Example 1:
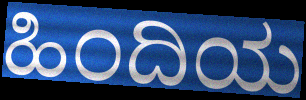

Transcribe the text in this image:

ಹಿಂದಿಯ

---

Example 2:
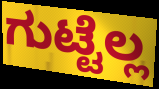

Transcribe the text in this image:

ಗುಟ್ಟೆಲ್ಲ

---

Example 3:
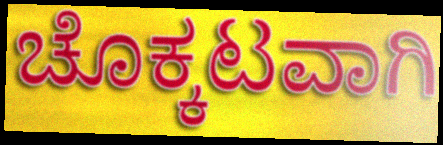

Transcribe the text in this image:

ಚೊಕ್ಕಟವಾಗಿ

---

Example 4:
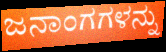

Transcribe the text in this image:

ಜನಾಂಗಗಳನ್ನು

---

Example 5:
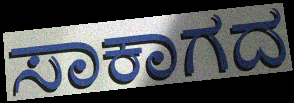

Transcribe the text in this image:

ಸಾಕಾಗದ